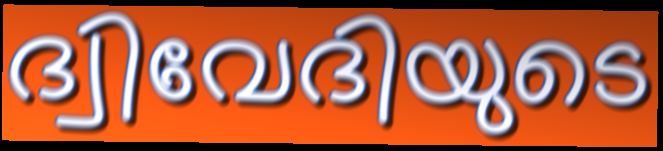
ദ്വിവേദിയുടെ